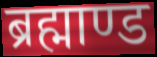
ब्रह्माण्ड